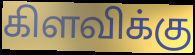
கிளவிக்கு